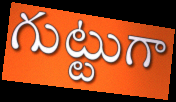
గుట్టుగా